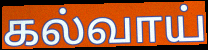
கல்வாய்